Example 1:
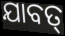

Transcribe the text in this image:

ଯାବତ୍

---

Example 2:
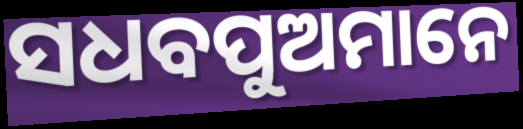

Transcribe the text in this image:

ସଧବପୁଅମାନେ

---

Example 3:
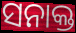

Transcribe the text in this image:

ସନାକ୍ତ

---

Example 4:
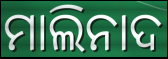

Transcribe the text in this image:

ମାଲିନାଦ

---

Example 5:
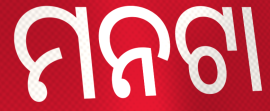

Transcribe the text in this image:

ମନଟା